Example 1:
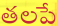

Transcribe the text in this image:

తలపే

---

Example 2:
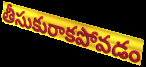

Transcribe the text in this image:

తీసుకురాకపోవడం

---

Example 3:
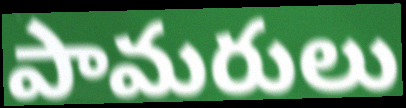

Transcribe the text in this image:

పామరులు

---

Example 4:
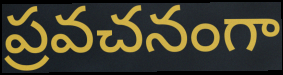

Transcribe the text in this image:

ప్రవచనంగా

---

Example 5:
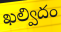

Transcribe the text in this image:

ఖల్విదం